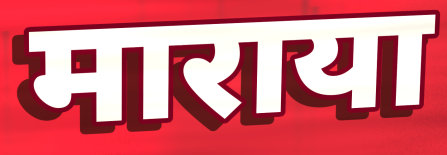
माराया